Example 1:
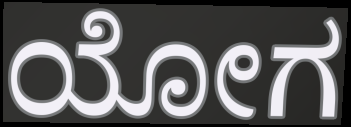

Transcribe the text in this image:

ಯೋಗ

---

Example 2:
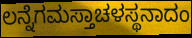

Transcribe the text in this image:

ಲನ್ನೆಗಮಸ್ತಾಚಳಸ್ಥನಾದಂ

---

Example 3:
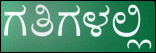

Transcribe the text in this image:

ಗತಿಗಳಲ್ಲಿ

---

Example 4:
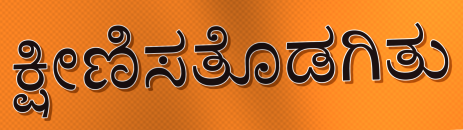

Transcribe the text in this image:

ಕ್ಷೀಣಿಸತೊಡಗಿತು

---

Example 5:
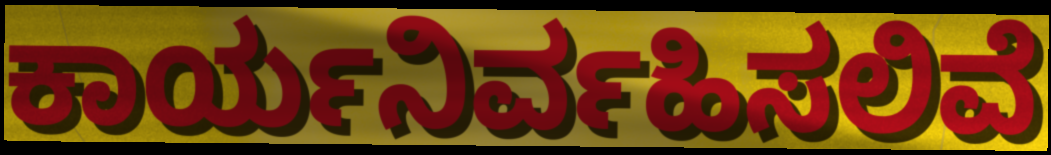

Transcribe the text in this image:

ಕಾರ್ಯನಿರ್ವಹಿಸಲಿವೆ